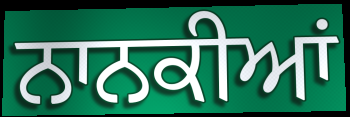
ਨਾਨਕੀਆਂ